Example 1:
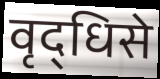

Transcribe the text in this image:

वृद्धिसे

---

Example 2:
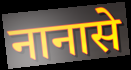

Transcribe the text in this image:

नानासे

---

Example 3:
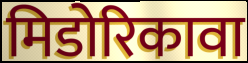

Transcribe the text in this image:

मिडोरिकावा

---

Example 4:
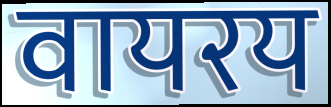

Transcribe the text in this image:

वायरय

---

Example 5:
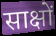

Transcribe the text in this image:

साक्षों